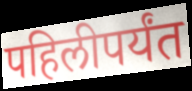
पहिलीपर्यंत